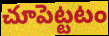
చూపెట్టటం